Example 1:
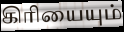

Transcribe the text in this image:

கிரியையும்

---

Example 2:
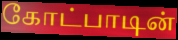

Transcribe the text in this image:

கோட்பாடின்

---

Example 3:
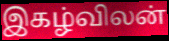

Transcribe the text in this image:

இகழ்விலன்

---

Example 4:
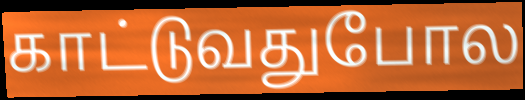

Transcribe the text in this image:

காட்டுவதுபோல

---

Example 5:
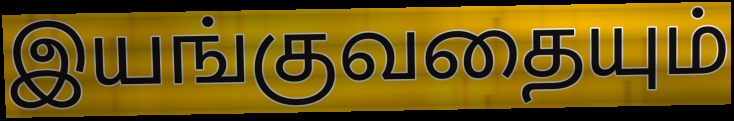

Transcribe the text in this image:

இயங்குவதையும்